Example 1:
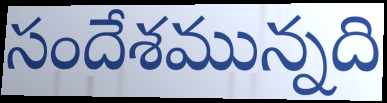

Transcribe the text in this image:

సందేశమున్నది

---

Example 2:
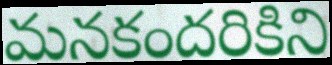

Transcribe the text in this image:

మనకందరికిని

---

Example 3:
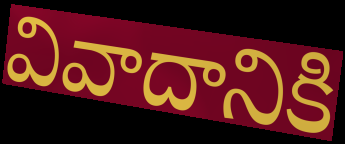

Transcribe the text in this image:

వివాదానికి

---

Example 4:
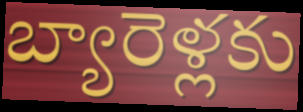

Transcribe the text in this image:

బ్యారెళ్లకు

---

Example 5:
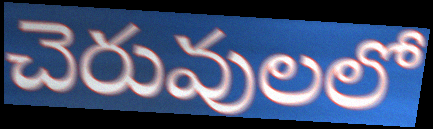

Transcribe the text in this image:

చెరువులలో